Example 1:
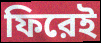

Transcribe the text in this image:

ফিরেই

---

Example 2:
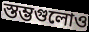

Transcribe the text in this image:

স্তম্ভগুলোও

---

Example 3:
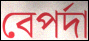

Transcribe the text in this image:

বেপর্দা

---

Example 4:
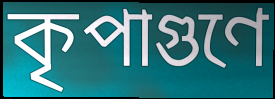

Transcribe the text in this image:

কৃপাগুণে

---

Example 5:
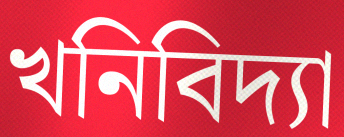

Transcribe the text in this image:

খনিবিদ্যা